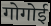
गोगोई